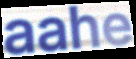
aahe